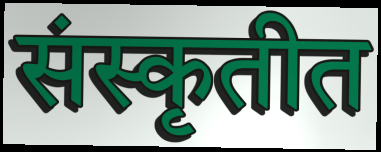
संस्कृतीत